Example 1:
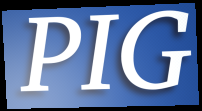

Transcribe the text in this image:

PIG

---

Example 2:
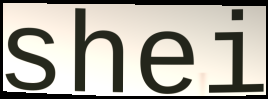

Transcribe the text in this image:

shei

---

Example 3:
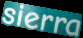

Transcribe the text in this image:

sierra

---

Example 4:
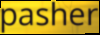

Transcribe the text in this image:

pasher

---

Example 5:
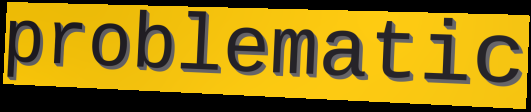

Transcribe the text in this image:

problematic